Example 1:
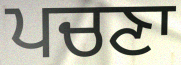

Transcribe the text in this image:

ਪਚਣਾ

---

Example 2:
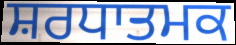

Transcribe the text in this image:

ਸ਼ਰਧਾਤਮਕ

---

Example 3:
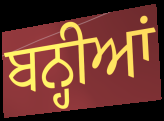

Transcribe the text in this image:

ਬਨ੍ਹੀਆਂ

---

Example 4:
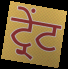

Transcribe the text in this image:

ਟ੍ਰੇਂਟ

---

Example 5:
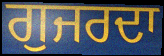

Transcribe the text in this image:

ਗੁਜਰਦਾ